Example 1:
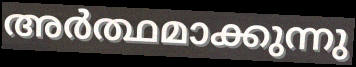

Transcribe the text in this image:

അർത്ഥമാക്കുന്നു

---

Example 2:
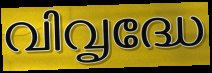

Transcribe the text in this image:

വിവൃദ്ധേ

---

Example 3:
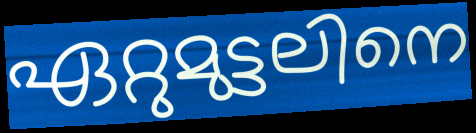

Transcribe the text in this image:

ഏറ്റുമുട്ടലിനെ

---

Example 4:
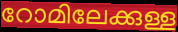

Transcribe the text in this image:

റോമിലേക്കുള്ള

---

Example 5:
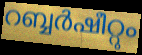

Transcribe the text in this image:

റബ്ബർഷീറ്റും